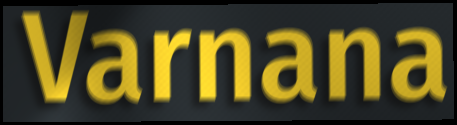
Varnana